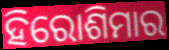
ହିରୋଶିମାର